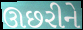
ઊછરીને